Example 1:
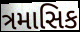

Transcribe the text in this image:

ત્રમાસિક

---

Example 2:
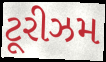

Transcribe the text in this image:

ટૂરીઝમ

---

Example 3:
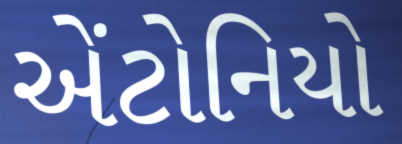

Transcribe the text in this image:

એંટોનિયો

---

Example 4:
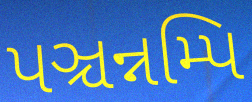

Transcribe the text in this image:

પઞ્ચન્નમ્પિ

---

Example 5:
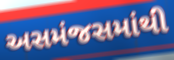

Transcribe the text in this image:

અસમંજસમાંથી